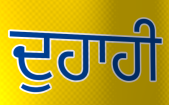
ਦੁਹਾਹੀ